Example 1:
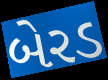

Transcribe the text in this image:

બેરડ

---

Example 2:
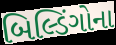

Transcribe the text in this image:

બિલ્ડિંગોના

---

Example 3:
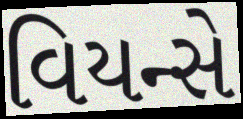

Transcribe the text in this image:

વિયન્સે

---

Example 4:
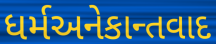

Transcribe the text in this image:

ધર્મઅનેકાન્તવાદ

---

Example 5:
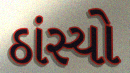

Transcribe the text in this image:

ઠાંસ્યો